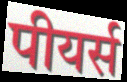
पीयर्स